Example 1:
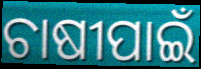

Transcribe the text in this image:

ଚାଷୀପାଇଁ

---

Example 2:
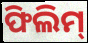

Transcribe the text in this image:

ଫିଲିମ୍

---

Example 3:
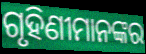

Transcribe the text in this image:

ଗୃହିଣୀମାନଙ୍କର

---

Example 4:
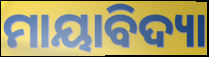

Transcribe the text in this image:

ମାୟାବିଦ୍ୟା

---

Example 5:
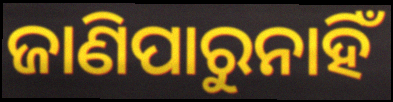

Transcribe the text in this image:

ଜାଣିପାରୁନାହିଁ